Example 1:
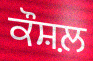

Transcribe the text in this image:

ਕੌਸ਼ਲ਼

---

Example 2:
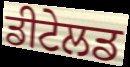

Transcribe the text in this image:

ਡੀਟੇਲਡ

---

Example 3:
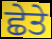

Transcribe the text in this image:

ਛੇਤੇ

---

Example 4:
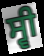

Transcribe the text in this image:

ਸ੍ਵੀ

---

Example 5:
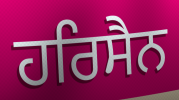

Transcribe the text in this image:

ਹਰਿਸੈਨ